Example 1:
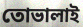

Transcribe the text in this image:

তোভালাই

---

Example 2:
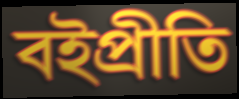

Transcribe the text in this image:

বইপ্রীতি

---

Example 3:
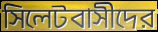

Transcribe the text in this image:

সিলেটবাসীদের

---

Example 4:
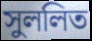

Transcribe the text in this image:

সুললিত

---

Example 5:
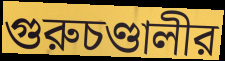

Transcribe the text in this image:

গুরুচণ্ডালীর